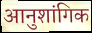
आनुशांगिक